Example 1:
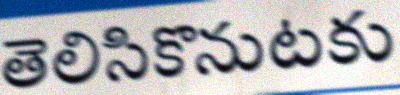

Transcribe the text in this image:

తెలిసికొనుటకు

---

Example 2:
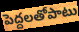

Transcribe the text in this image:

పెద్దలతోపాటు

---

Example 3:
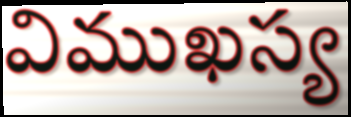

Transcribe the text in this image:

విముఖస్య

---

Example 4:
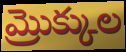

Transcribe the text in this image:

మ్రొక్కుల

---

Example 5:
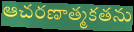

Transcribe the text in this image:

ఆచరణాత్మకతను